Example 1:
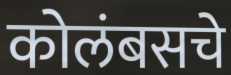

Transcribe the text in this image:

कोलंबसचे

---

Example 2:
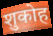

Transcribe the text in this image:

शुकोह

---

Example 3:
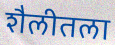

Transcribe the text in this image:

शैलीतला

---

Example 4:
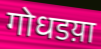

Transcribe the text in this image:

गोधडय़ा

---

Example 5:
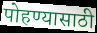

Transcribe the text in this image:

पोहण्यासाठी